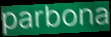
parbona